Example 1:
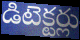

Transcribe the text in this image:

డిటెక్టర్లు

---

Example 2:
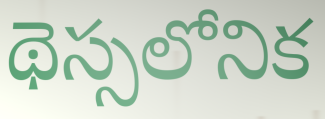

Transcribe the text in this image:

థెస్సలోనిక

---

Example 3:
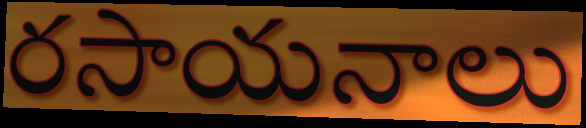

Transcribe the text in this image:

రసాయనాలు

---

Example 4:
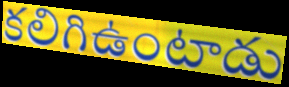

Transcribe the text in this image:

కలిగిఉంటాడు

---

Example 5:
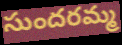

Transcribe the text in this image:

సుందరమ్మ